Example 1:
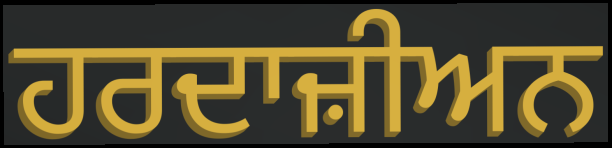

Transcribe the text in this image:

ਹਰਦਾਜ਼ੀਅਨ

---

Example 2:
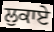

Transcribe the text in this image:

ਲੁਕਾਏ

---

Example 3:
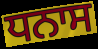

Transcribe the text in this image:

ਧਨਾਸ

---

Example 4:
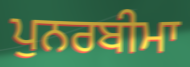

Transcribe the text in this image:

ਪੁਨਰਬੀਮਾ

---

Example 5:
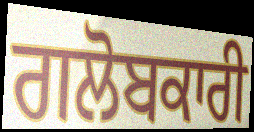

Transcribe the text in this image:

ਗਲੋਬਕਾਰੀ